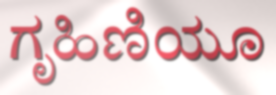
ಗೃಹಿಣಿಯೂ